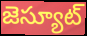
జెస్యూట్